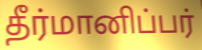
தீர்மானிப்பர்